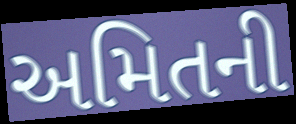
અમિતની